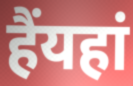
हैंयहां